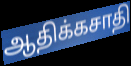
ஆதிக்கசாதி